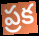
ప్రక